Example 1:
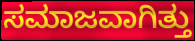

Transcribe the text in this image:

ಸಮಾಜವಾಗಿತ್ತು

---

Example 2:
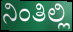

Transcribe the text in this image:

ನಿಂತಿಲ್ಲಿ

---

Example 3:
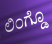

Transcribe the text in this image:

ಲಿಂಗ್ಡೊ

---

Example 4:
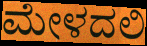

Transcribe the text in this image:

ಮೇಳದಲಿ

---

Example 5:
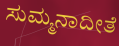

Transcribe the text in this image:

ಸುಮ್ಮನಾದೀತೆ